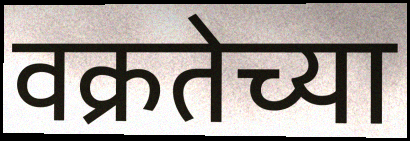
वक्रतेच्या